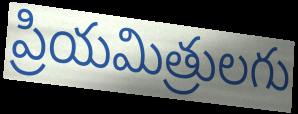
ప్రియమిత్రులగు